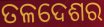
ତଳଦେଶର